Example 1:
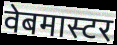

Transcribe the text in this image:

वेबमास्टर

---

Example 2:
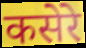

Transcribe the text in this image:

कसेरे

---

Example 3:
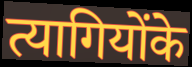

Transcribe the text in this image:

त्यागियोंके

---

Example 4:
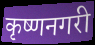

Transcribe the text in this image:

कृष्णनगरी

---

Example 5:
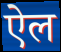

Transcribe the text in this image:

ऐल